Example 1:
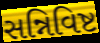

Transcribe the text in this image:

સન્નિવિષ્ટ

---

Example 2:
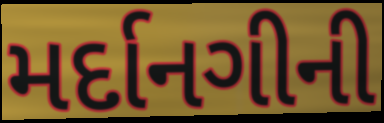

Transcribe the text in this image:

મર્દાનગીની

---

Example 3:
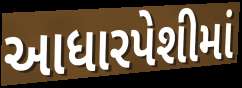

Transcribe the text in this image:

આધારપેશીમાં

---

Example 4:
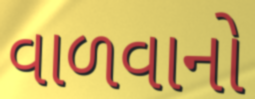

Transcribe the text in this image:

વાળવાનો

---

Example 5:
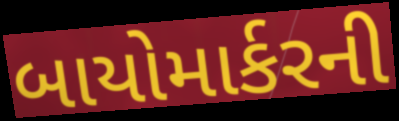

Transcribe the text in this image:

બાયોમાર્કરની